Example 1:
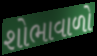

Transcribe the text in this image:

શોભાવાળો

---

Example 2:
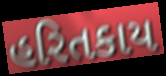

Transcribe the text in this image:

હરિતકાય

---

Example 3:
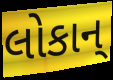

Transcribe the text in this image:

લોકાન્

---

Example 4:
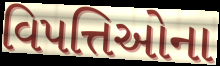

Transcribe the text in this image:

વિપત્તિઓના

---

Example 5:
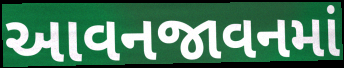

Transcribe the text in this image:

આવનજાવનમાં